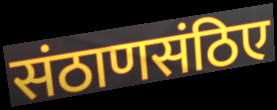
संठाणसंठिए